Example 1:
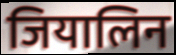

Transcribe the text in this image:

जियालिन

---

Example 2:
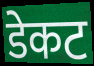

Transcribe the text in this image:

डेकट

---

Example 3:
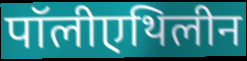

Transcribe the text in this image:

पॉलीएथिलीन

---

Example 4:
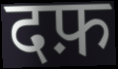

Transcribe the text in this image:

दफ़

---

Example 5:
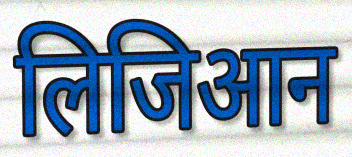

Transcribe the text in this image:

लिजिआन